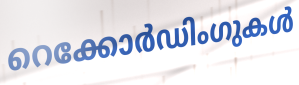
റെക്കോർഡിംഗുകൾ